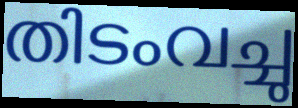
തിടംവച്ചു